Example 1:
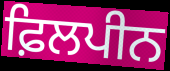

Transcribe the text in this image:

ਫ਼ਿਲਪੀਨ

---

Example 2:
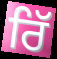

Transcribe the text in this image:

ਰਿੱ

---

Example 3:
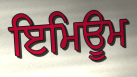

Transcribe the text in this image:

ਇਮਿਊਮ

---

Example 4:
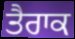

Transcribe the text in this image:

ਤੈਰਾਕ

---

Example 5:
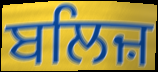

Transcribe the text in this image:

ਬਲਿਜ਼